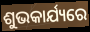
ଶୁଭକାର୍ଯ୍ୟରେ